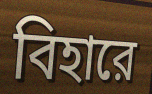
বিহারে